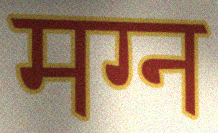
मग्‍न